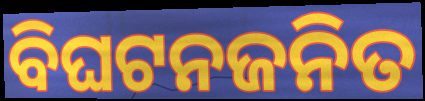
ବିଘଟନଜନିତ